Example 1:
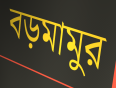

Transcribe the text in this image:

বড়মামুর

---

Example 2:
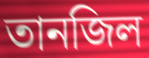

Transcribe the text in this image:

তানজিল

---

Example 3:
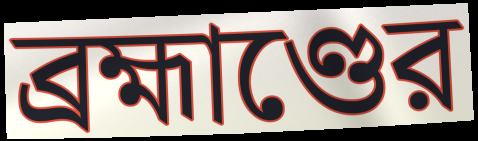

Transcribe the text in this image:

ব্রহ্মাণ্ডের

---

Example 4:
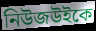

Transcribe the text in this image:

নিউজউইকে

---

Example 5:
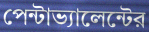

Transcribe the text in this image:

পেন্টাভ্যালেন্টের